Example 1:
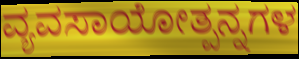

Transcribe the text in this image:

ವ್ಯವಸಾಯೋತ್ಪನ್ನಗಳ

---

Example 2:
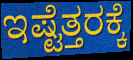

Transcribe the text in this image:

ಇಷ್ಟೆತ್ತರಕ್ಕೆ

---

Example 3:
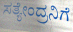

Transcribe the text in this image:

ಸತ್ಯೇಂದ್ರನಿಗೆ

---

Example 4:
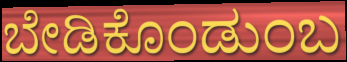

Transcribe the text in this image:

ಬೇಡಿಕೊಂಡುಂಬ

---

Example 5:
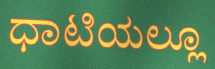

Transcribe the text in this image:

ಧಾಟಿಯಲ್ಲೂ